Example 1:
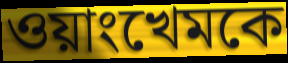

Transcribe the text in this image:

ওয়াংখেমকে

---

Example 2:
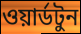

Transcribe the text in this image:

ওয়ার্ডটুন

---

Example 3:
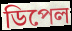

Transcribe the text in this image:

ডিপেল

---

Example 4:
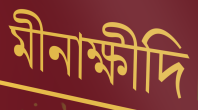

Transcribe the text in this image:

মীনাক্ষীদি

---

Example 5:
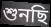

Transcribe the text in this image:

শুনছি